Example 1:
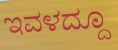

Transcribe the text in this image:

ಇವಳದ್ದೂ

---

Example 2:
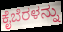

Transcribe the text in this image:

ಕೈಬೆರಳನ್ನು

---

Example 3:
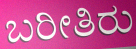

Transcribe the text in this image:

ಬರೀತಿರು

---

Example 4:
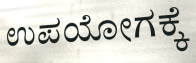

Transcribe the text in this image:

ಉಪಯೋಗಕ್ಕೆ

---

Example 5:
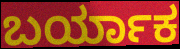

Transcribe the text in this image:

ಬರ್ಯಾಕ